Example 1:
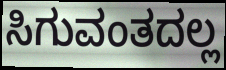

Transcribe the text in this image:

ಸಿಗುವಂತದಲ್ಲ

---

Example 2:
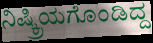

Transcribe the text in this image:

ನಿಷ್ಕ್ರಿಯಗೊಂಡಿದ್ದ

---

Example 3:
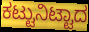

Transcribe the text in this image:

ಕಟ್ಟುನಿಟ್ಟಾದ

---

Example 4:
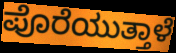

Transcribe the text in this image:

ಪೊರೆಯುತ್ತಾಳೆ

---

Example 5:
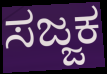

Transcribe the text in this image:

ಸಜ್ಜಕ